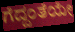
ಗೆದ್ದಂತೆಯೇ